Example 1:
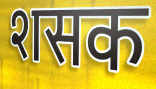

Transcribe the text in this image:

शसक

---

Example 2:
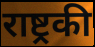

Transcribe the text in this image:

राष्ट्रकी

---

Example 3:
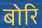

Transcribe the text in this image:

बोरि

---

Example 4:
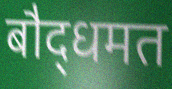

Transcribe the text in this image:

बौद्धमत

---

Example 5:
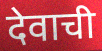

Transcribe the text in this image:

देवाची